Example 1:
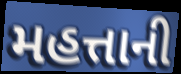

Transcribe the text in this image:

મહત્તાની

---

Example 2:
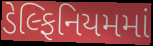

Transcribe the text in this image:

ડેલ્ફિનિયમમાં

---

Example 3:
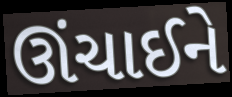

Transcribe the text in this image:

ઊંચાઈને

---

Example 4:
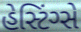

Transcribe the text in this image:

હેસ્ટિંગ્સે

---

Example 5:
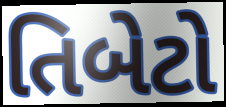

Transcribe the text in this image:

તિબેટો